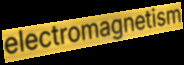
electromagnetism